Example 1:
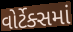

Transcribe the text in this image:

વોર્ટેક્સમાં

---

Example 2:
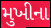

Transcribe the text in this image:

મુખીના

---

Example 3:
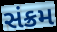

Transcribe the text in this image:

સંક્રમ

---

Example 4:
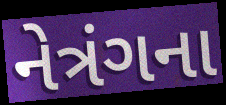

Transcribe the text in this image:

નેત્રંગના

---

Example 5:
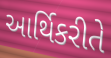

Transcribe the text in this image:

આર્થિકરીતે